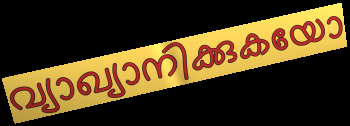
വ്യാഖ്യാനിക്കുകയോ